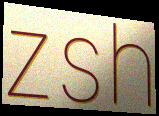
zsh